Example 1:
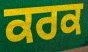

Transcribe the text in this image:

ਕਰਕ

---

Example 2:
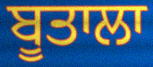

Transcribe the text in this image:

ਬੂਤਾਲਾ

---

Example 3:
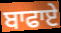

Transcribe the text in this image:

ਬਾਫਾਏ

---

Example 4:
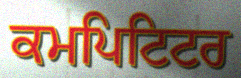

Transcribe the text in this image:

ਕਮਪਿਟਿਟਰ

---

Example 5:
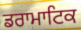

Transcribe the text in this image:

ਡਰਾਮਾਟਿਕ